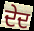
ਦੇਦ